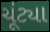
ચૂંટ્યા